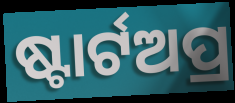
ଷ୍ଟାର୍ଟଅପ୍ର